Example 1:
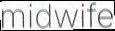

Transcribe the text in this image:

midwife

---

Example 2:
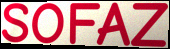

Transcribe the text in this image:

SOFAZ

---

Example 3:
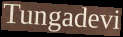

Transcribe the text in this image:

Tungadevi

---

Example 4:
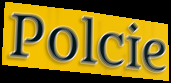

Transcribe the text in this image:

Polcie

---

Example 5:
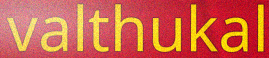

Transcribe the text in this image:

valthukal